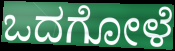
ಒದಗೋಳೆ